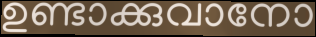
ഉണ്ടാക്കുവാനോ